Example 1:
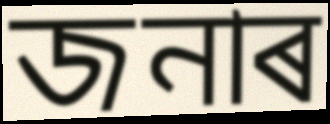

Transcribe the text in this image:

জনাৰ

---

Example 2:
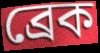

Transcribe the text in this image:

ব্ৰেক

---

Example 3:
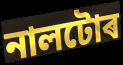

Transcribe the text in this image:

নালটোৰ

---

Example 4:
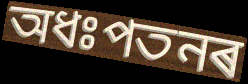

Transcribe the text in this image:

অধঃপতনৰ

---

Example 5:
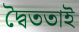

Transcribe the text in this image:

দ্বৈততাই